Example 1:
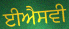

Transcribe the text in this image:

ਈਐਸਵੀ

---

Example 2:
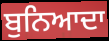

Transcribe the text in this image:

ਬੁਨਿਆਦਾ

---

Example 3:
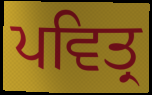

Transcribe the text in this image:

ਪਵਿਤ੍ਰ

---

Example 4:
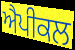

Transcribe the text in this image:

ਐਪੀਕਲ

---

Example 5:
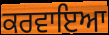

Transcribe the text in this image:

ਕਰਵਾਇਆ